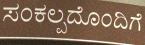
ಸಂಕಲ್ಪದೊಂದಿಗೆ